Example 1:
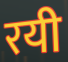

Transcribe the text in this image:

रयी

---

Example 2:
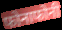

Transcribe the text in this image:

फोनाफोनी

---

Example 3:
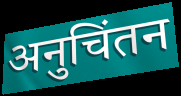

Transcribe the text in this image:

अनुचिंतन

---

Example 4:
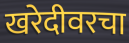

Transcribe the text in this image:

खरेदीवरचा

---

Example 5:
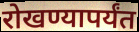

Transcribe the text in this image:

रोखण्यापर्यंत